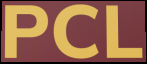
PCL